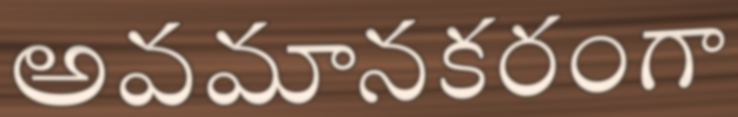
అవమానకరంగా